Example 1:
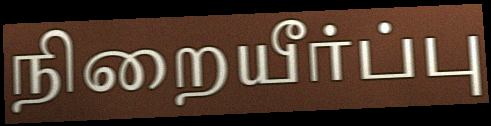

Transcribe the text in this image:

நிறையீர்ப்பு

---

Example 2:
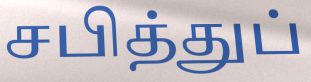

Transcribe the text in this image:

சபித்துப்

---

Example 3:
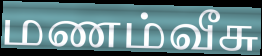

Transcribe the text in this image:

மணம்வீசு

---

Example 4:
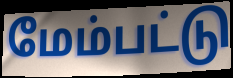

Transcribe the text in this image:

மேம்பட்டு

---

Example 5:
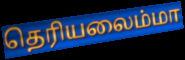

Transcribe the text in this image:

தெரியலைம்மா